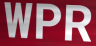
WPR